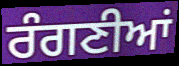
ਰੰਗਣੀਆਂ